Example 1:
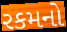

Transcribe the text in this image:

રકમનો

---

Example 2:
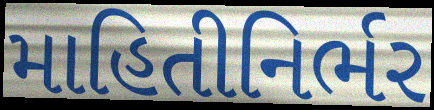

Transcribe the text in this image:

માહિતીનિર્ભર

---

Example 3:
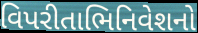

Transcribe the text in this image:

વિપરીતાભિનિવેશનો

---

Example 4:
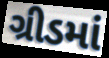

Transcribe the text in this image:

ગ્રીડમાં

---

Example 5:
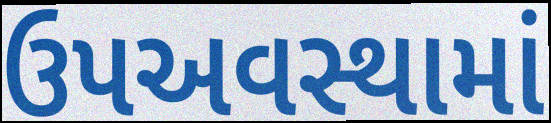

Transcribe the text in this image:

ઉપઅવસ્થામાં